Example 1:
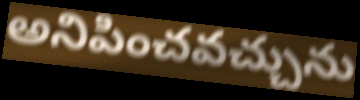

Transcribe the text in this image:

అనిపించవచ్చును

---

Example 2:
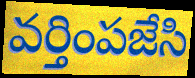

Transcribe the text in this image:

వర్తింపజేసి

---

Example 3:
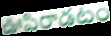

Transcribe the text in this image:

ఊపిరాడటం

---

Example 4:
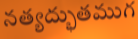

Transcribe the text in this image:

నత్యద్భుతముగ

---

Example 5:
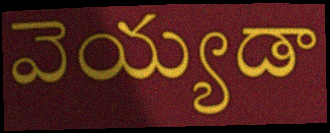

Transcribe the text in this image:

వెయ్యడా